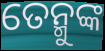
ତେନ୍ମୁଙ୍କ